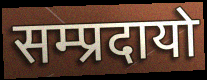
सम्प्रदायो